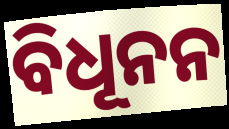
ବିଧୂନନ